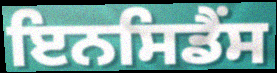
ਇਨਸਿਡੈਂਸ